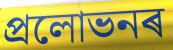
প্ৰলোভনৰ